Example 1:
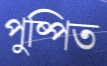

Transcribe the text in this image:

পুষ্পিত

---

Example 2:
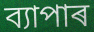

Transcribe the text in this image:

ব্যাপাৰ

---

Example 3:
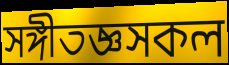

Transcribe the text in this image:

সঙ্গীতজ্ঞসকল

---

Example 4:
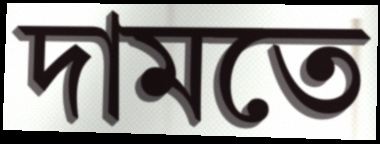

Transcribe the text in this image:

দামতে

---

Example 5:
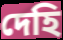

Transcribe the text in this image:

দেহি